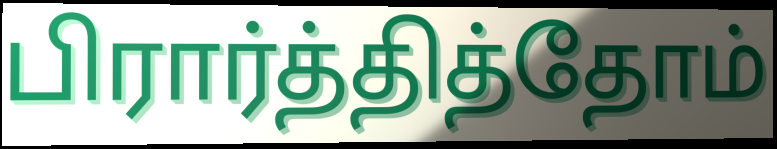
பிரார்த்தித்தோம்